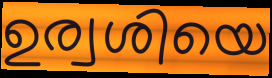
ഉര്വശിയെ